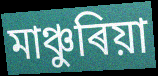
মাঞ্চুৰিয়া